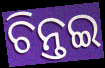
ଚିନ୍ତଇ